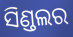
ସିଣ୍ଡଲର